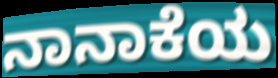
ನಾನಾಕೆಯ